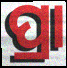
ପ୍ରା